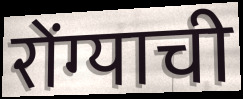
रोंग्याची